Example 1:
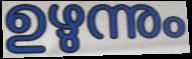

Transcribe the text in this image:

ഉഴുന്നും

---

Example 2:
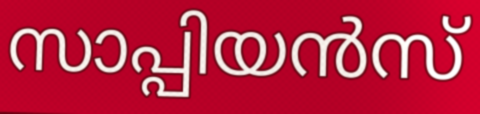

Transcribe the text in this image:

സാപ്പിയൻസ്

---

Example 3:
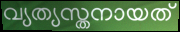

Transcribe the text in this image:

വ്യത്യസ്തനായത്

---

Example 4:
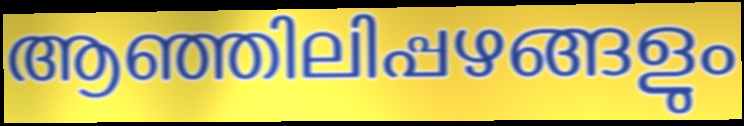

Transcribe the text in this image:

ആഞ്ഞിലിപ്പഴങ്ങളും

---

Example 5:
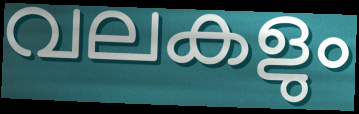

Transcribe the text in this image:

വലകളും